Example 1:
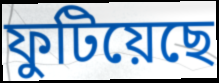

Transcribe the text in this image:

ফুটিয়েছে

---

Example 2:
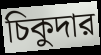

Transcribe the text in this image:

চিকুদার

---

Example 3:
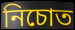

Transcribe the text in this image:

নিচোত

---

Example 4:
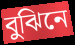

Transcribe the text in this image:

বুঝিনে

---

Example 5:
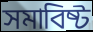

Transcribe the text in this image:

সমাবিষ্ট